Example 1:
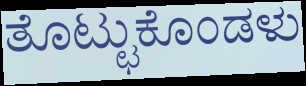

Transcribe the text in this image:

ತೊಟ್ಟುಕೊಂಡಳು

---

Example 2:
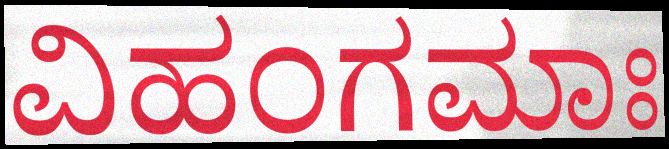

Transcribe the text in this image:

ವಿಹಂಗಮಾಃ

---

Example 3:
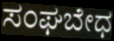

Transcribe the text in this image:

ಸಂಘಬೇಧ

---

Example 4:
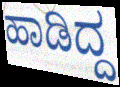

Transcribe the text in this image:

ಹಾಡಿದ್ದ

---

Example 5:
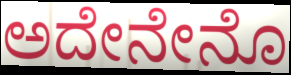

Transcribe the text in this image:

ಅದೇನೇನೊ